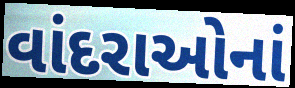
વાંદરાઓનાં